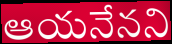
ఆయనేనని